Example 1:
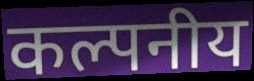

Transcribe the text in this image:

कल्पनीय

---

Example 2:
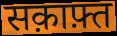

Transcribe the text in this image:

सक़ाफ़्त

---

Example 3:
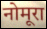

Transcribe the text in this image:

नोमूरा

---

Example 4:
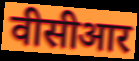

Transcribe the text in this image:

वीसीआर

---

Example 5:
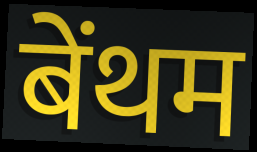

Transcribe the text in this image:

बेंथम